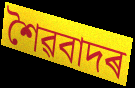
শৈৱবাদৰ